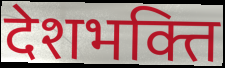
देशभक्ति